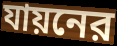
যায়নের